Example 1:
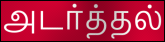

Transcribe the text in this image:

அடர்த்தல்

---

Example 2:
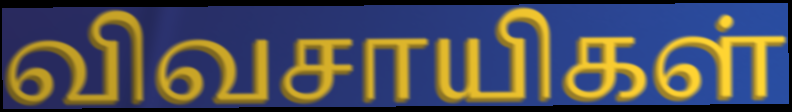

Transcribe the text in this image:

விவசாயிகள்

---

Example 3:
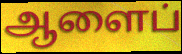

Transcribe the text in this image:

ஆளைப்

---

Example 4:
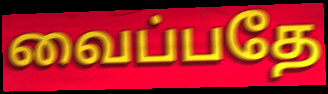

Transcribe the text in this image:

வைப்பதே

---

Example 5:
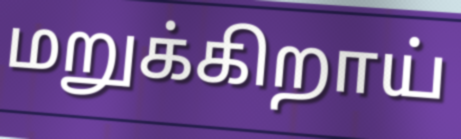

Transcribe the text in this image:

மறுக்கிறாய்